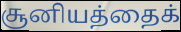
சூனியத்தைக்